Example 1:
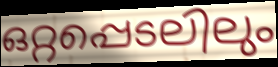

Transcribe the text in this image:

ഒറ്റപ്പെടലിലും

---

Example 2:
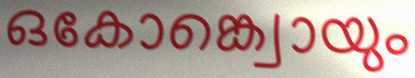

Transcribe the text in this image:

ഒകോങ്ക്വൊയും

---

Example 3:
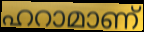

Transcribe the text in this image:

ഹറാമാണ്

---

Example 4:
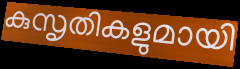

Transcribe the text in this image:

കുസൃതികളുമായി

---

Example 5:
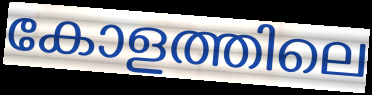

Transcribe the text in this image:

കോളത്തിലെ